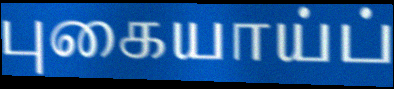
புகையாய்ப்